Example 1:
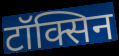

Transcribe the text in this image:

टॉक्सिन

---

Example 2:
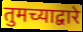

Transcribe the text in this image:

तुमच्याद्वारे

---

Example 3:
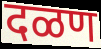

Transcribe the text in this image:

दळण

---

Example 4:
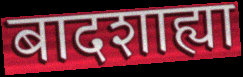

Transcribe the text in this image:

बादशाह्या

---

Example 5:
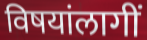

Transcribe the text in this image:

विषयांलागीं